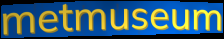
metmuseum